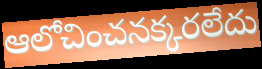
ఆలోచించనక్కరలేదు